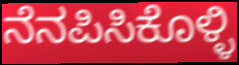
ನೆನಪಿಸಿಕೊಳ್ಳಿ